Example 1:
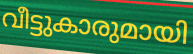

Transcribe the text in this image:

വീട്ടുകാരുമായി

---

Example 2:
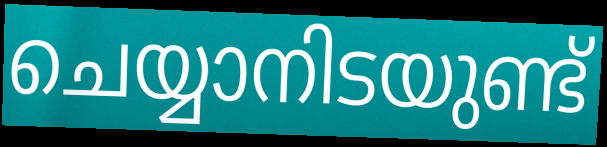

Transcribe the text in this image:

ചെയ്യാനിടയുണ്ട്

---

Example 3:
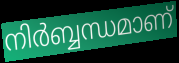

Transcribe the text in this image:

നിർബ്ബന്ധമാണ്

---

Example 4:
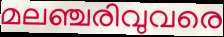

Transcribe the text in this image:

മലഞ്ചരിവുവരെ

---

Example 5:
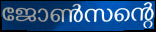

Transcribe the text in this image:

ജോൺസന്റെ